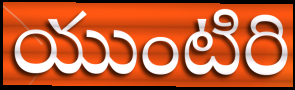
యుంటిరి